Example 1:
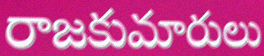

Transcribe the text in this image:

రాజకుమారులు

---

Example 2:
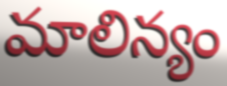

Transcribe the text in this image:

మాలిన్యం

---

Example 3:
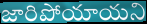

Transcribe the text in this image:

జారిపోయాయని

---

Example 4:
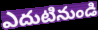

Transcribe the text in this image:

ఎదుటినుండి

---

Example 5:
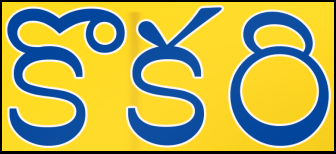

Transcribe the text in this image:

కొకరి